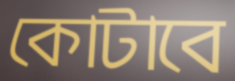
কোটাবে